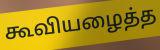
கூவியழைத்த